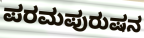
ಪರಮಪುರುಷನ